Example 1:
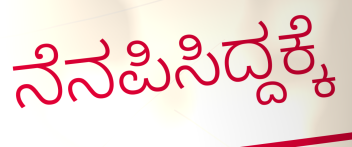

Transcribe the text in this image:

ನೆನಪಿಸಿದ್ದಕ್ಕೆ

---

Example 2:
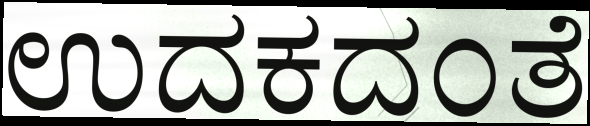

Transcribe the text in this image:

ಉದಕದಂತೆ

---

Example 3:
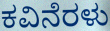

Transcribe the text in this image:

ಕವಿನೆರಳು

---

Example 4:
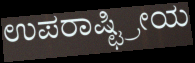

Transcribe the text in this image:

ಉಪರಾಷ್ಟ್ರೀಯ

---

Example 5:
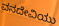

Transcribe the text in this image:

ವನದೇವಿಯು